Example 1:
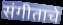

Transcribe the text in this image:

संगीताचे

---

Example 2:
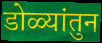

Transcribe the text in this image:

डोळ्यांतुन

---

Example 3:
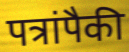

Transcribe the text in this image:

पत्रांपैकी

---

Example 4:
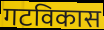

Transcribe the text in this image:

गटविकास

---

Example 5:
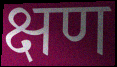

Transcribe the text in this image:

क्षण